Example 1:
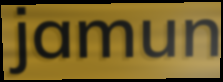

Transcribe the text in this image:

jamun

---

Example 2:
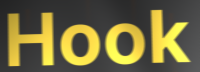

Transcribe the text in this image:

Hook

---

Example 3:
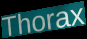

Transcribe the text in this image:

Thorax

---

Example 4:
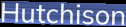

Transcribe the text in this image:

Hutchison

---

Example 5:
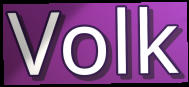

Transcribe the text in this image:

Volk